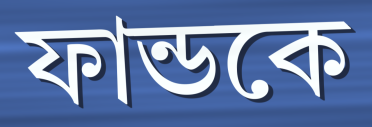
ফান্ডকে